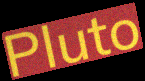
Pluto